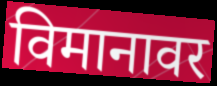
विमानावर